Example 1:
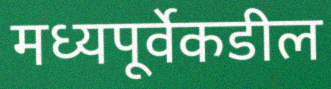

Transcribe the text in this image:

मध्यपूर्वेकडील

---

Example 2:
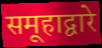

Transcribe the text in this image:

समूहाद्वारे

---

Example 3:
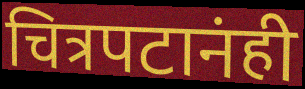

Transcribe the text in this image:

चित्रपटानंही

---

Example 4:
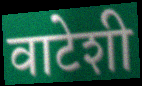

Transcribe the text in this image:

वाटेशी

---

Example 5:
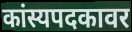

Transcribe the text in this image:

कांस्यपदकावर